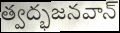
త్వద్భజనవాన్